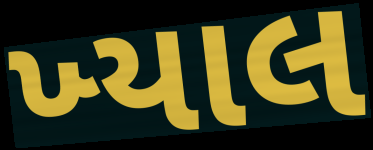
ખ્‍યાલ